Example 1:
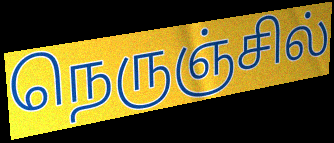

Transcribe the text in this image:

நெருஞ்சில்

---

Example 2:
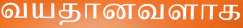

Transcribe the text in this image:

வயதானவளாக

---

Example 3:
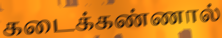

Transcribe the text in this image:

கடைக்கண்ணால்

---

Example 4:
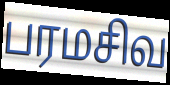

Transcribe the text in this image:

பரமசிவ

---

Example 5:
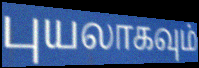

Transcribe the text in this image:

புயலாகவும்